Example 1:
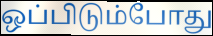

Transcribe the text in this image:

ஒப்பிடும்போது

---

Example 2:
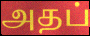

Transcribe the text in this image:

அதப்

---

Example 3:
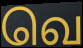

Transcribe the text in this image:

வெ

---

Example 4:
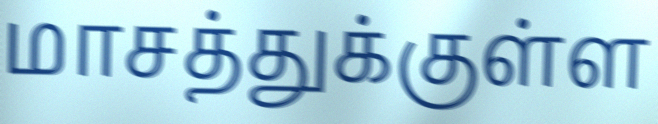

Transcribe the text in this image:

மாசத்துக்குள்ள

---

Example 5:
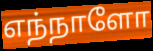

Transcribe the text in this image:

எந்நாளோ